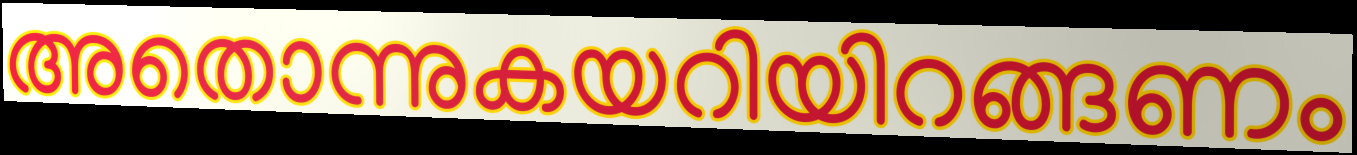
അതൊന്നുകയറിയിറങ്ങണം